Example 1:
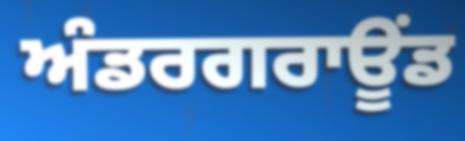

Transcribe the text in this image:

ਅੰਡਰਗਰਾਊੰਡ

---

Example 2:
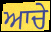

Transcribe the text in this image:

ਆਚੇ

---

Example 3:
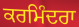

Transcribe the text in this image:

ਕਰਮਿੰਦਰਾ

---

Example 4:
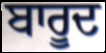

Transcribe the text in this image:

ਬਾਰੂਦ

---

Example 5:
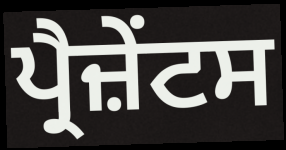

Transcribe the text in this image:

ਪ੍ਰੈਜ਼ੇਂਟਸ